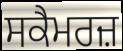
ਸਕੈਮਰਜ਼